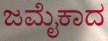
ಜಮೈಕಾದ